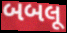
બબલૂ